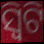
ସ୍ୱିଟି